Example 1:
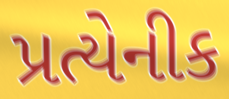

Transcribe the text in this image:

પ્રત્યેનીક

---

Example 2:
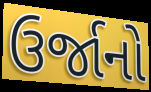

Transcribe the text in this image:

ઉર્જાનો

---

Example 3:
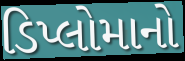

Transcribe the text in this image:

ડિપ્લોમાનો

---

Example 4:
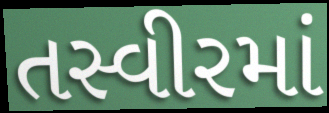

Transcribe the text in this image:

તસ્વીરમાં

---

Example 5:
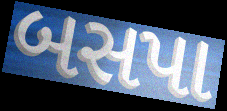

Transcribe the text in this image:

બસપા